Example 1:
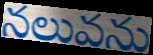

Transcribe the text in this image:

నలువను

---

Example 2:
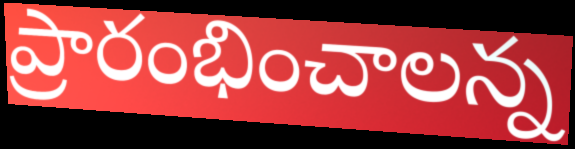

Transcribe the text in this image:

ప్రారంభించాలన్న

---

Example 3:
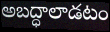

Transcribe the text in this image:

అబద్ధాలాడటం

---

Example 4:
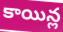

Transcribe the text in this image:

కాయిన్ల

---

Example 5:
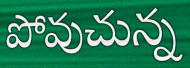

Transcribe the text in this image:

పోవుచున్న